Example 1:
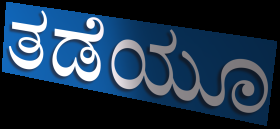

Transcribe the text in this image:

ತಡೆಯೂ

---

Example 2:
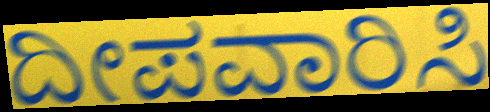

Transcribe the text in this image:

ದೀಪವಾರಿಸಿ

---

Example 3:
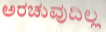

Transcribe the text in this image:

ಅರಚುವುದಿಲ್ಲ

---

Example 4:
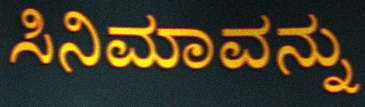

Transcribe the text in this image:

ಸಿನಿಮಾವನ್ನು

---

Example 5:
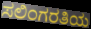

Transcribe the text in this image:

ಸಲಿಂಗರತಿಯ